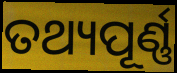
ତଥ୍ୟପୂର୍ଣ୍ଣ